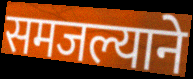
समजल्याने